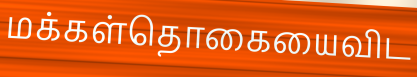
மக்கள்தொகையைவிட